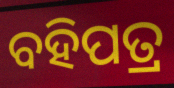
ବହିପତ୍ର